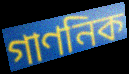
গাণনিক